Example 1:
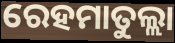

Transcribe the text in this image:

ରେହମାତୁଲ୍ଲା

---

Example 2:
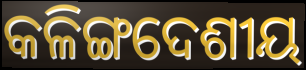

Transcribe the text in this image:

କଳିଙ୍ଗଦେଶୀୟ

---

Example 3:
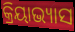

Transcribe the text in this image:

କ୍ରିୟାଭ୍ୟାସ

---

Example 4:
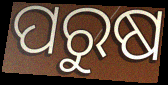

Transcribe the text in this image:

ପରୁଷ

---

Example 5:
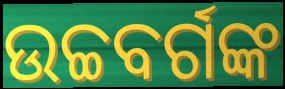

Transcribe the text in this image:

ଉଚ୍ଚବର୍ଗଙ୍କ